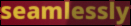
seamlessly